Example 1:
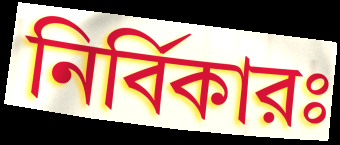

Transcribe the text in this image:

নির্বিকারঃ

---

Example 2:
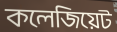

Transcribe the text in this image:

কলেজিয়েট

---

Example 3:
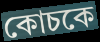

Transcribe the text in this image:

কোচকে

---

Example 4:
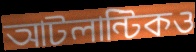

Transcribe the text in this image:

আটলান্টিকও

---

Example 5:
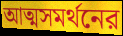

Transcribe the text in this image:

আত্মসমর্থনের